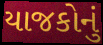
યાજકોનું